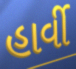
હાર્વી